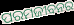
ପରମଜୀବନର